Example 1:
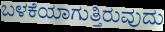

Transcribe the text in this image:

ಬಳಕೆಯಾಗುತ್ತಿರುವುದು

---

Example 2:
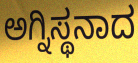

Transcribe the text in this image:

ಅಗ್ನಿಸ್ಥನಾದ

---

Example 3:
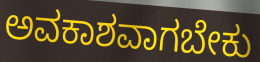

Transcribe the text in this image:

ಅವಕಾಶವಾಗಬೇಕು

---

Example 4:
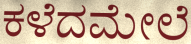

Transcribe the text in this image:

ಕಳೆದಮೇಲೆ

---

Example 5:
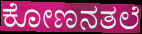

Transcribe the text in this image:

ಕೋಣನತಲೆ